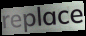
replace